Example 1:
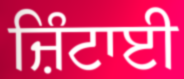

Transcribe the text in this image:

ਜ਼ਿੰਟਾਈ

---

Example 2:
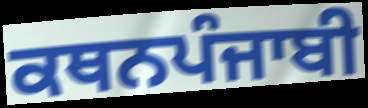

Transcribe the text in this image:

ਕਥਨਪੰਜਾਬੀ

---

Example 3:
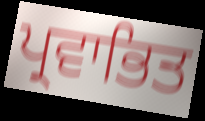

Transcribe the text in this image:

ਪ੍ਰਵਾਭਿਤ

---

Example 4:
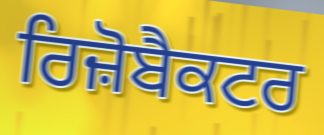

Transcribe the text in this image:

ਰਿਜ਼ੋਬੈਕਟਰ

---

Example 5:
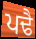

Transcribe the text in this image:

ਪਢੈ